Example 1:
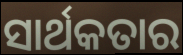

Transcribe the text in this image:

ସାର୍ଥକତାର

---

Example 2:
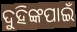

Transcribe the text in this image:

ଦୁହିଙ୍କପାଇଁ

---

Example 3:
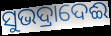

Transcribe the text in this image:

ସୁଭଦ୍ରାଦେଈ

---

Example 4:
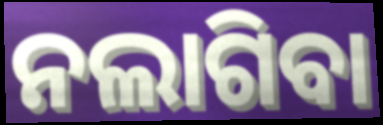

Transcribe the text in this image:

ନଲାଗିବା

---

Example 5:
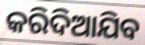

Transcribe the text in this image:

କରିଦିଆଯିବ